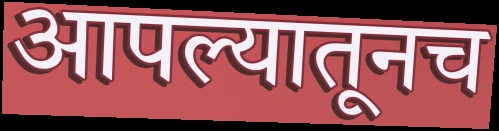
आपल्यातूनच